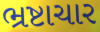
ભ્રષ્ટાચાર